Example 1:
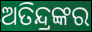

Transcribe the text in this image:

ଅତିନ୍ଦ୍ରଙ୍କର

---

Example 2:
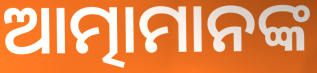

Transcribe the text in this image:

ଆତ୍ମାମାନଙ୍କ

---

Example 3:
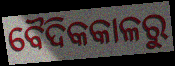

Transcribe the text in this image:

ବୈଦିକକାଳରୁ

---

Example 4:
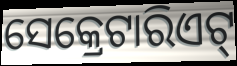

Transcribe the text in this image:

ସେକ୍ରେଟାରିଏଟ୍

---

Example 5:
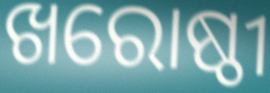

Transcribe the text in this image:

ଖରୋଷ୍ଠୀ